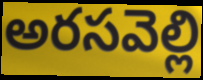
అరసవెల్లి